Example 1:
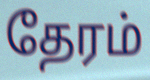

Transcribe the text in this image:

தேரம்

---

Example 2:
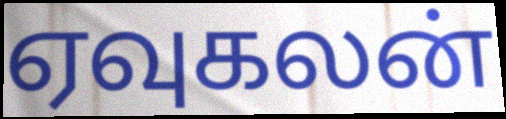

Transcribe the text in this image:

ஏவுகலன்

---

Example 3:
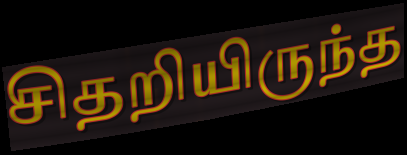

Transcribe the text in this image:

சிதறியிருந்த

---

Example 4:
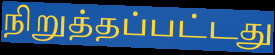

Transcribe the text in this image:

நிறுத்தப்பட்டது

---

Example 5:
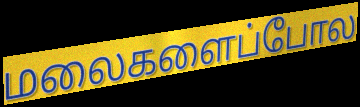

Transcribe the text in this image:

மலைகளைப்போல